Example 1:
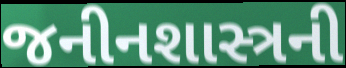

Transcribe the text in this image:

જનીનશાસ્ત્રની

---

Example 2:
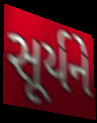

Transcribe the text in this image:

સૂર્યને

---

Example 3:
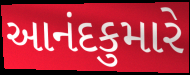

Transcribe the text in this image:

આનંદકુમારે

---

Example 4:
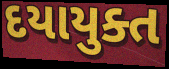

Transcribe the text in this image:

દયાયુક્ત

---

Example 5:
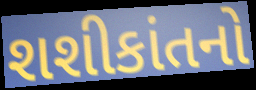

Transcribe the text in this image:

શશીકાંતનો